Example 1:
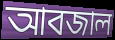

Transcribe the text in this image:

আবজাল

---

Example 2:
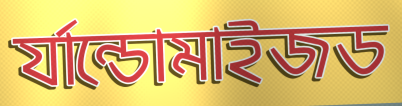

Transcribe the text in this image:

র্যান্ডোমাইজড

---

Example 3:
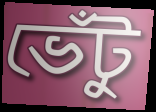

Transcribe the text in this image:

ভেঁটু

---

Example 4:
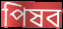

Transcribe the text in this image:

পিষব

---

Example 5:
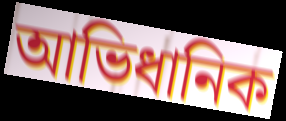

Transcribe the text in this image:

আভিধানিক